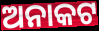
ଅନାକଟ